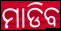
ମାଡିବ